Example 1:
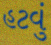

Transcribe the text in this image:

હટવું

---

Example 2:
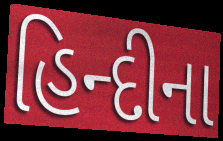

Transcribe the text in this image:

હિન્દીના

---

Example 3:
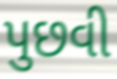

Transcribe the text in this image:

પુછવી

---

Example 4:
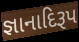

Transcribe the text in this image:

જ્ઞાનાદિરૂપ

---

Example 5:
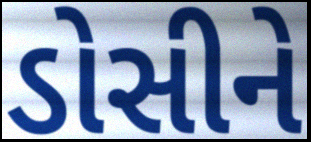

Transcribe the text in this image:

ડોસીને